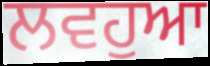
ਲਵਹੁਆ